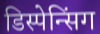
डिस्पेन्सिंग